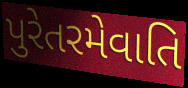
પુરેતરમેવાતિ